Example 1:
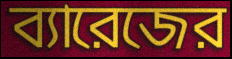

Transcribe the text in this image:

ব্যারেজের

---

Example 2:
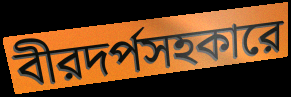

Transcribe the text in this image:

বীরদর্পসহকারে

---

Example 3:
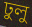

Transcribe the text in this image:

ঢুলু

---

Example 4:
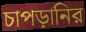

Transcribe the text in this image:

চাপড়ানির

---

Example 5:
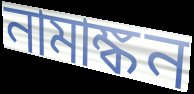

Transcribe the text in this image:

নামাঙ্কন